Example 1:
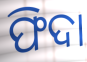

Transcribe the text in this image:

ଫିଦା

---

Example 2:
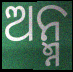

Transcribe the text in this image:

ଅନ୍ମ୍ନ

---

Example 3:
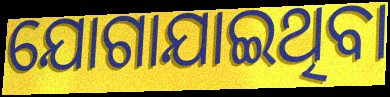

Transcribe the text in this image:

ଯୋଗାଯାଇଥିବା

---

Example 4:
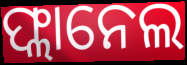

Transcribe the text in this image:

ଫ୍ଲାନେଲ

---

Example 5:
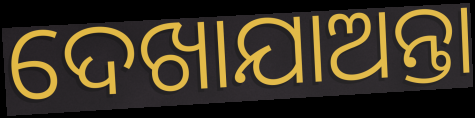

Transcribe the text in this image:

ଦେଖାଯାଅନ୍ତା